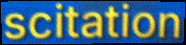
scitation